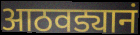
आठवड्यानं